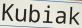
Kubiak